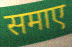
समाए